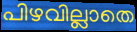
പിഴവില്ലാതെ